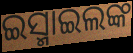
ଇସ୍ମାଇଲଙ୍କ